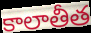
కాలాతీత